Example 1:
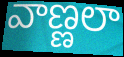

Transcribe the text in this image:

వాణ్ణలా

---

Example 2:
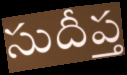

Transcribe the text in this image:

సుదీప్త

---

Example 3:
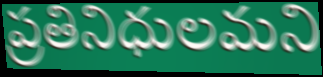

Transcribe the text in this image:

ప్రతినిధులమని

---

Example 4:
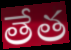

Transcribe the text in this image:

తేత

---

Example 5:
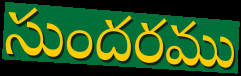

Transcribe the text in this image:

సుందరము